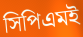
সিপিএমই